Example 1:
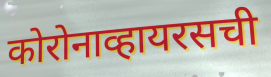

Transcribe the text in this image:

कोरोनाव्हायरसची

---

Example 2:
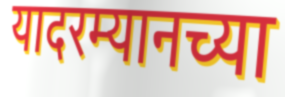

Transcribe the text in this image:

यादरम्यानच्या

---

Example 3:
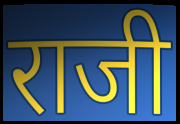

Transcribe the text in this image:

राजी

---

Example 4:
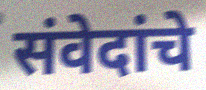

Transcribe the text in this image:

संवेदांचे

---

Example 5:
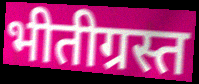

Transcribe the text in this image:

भीतीग्रस्त